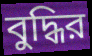
বুদ্ধির